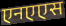
एनएएस